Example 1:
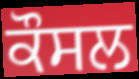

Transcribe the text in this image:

ਕੌਸਲ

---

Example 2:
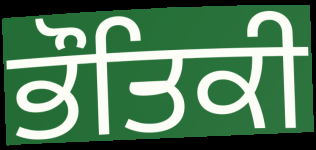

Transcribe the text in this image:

ਭੌਤਿਕੀ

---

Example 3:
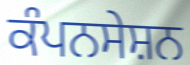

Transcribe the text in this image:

ਕੰਪਨਸੇਸ਼ਨ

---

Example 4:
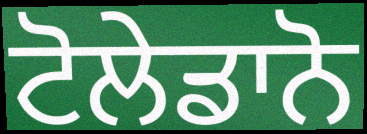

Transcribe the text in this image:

ਟੋਲੇਡਾਨੋ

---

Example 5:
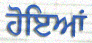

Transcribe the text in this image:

ਹੋਇਆਂ